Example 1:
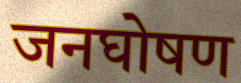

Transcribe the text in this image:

जनघोषण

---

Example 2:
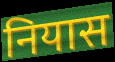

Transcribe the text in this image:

नियास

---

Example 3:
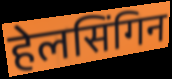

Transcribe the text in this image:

हेलसिंगिन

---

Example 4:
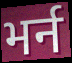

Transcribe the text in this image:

भर्न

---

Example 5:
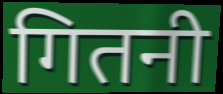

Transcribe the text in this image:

गितनी